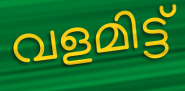
വളമിട്ട്